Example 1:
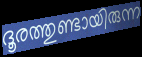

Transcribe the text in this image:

ദൂരത്തുണ്ടായിരുന്ന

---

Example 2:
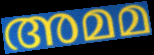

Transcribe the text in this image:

അമമ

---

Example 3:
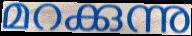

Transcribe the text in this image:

മറക്കുന്നു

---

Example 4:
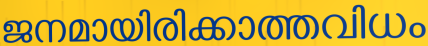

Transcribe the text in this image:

ജനമായിരിക്കാത്തവിധം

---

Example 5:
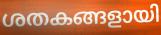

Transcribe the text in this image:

ശതകങ്ങളായി